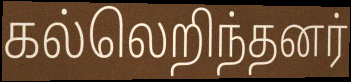
கல்லெறிந்தனர்